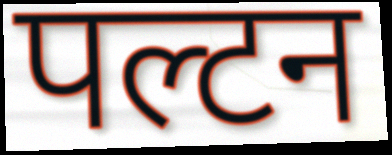
पल्टन